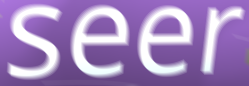
seer